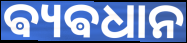
ଵ୍ୟଵଧାନ